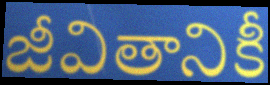
జీవితానికీ